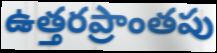
ఉత్తరప్రాంతపు